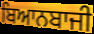
ਬਿਆਨਬਾਜੀ